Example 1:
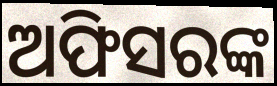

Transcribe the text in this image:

ଅଫିସରଙ୍କ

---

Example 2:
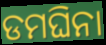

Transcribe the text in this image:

ଡମଘିନା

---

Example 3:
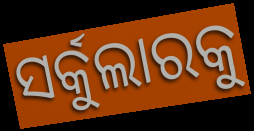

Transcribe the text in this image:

ସର୍କୁଲାରକୁ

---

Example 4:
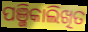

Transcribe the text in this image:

ପଞ୍ଜିକାଲିଖିତ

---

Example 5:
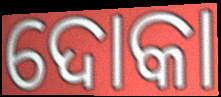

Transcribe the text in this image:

ଦୋକା